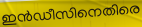
ഇൻഡീസിനെതിരെ